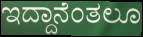
ಇದ್ದಾನೆಂತಲೂ